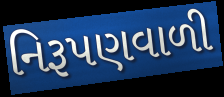
નિરૂપણવાળી